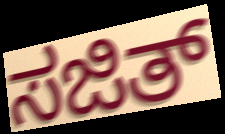
ಸಜಿತ್